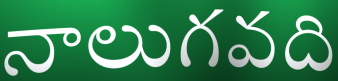
నాలుగవది